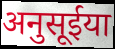
अनुसूईया